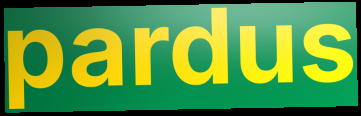
pardus